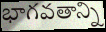
భాగవతాన్ని